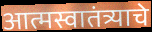
आत्मस्वातंत्र्याचे